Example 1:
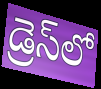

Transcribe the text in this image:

డ్రెస్‌లో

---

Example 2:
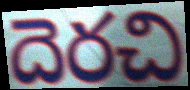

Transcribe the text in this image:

దెరచి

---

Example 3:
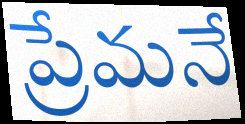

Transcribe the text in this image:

ప్రేమనే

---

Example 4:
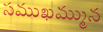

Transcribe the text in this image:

సముఖమ్మున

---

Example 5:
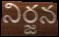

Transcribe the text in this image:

నిర్జన